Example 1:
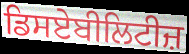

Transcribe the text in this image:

ਡਿਸਏਬੀਲਿਟੀਜ਼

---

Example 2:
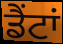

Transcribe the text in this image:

ਡੈਂਟਾਂ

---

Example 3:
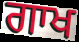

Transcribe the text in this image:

ਗਾਖ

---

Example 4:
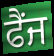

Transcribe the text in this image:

ਫੈਂਜ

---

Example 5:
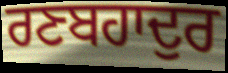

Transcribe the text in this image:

ਰਣਬਹਾਦੁਰ